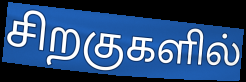
சிறகுகளில்